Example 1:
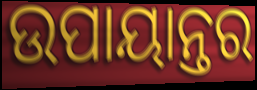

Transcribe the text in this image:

ଉପାୟାନ୍ତର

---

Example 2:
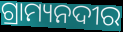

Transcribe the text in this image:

ଗ୍ରାମ୍ୟନଦୀର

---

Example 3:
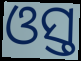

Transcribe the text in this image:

ଓସ୍ତ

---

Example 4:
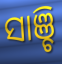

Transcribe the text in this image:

ସାଞ୍ଚି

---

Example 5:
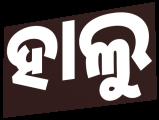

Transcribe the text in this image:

ହାଲୁ